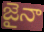
జైనా